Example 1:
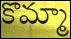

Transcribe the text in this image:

కొమ్మా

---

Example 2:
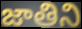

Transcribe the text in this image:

జాతిని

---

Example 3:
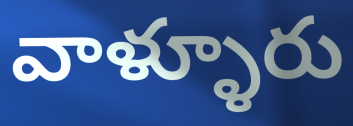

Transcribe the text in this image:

వాళ్ళూరు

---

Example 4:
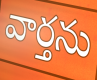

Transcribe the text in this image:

వార్తను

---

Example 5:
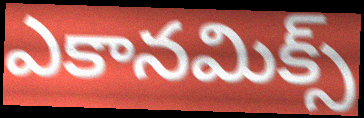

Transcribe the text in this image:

ఎకానమిక్స్